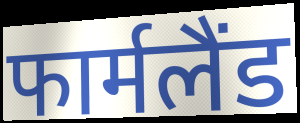
फार्मलैंड